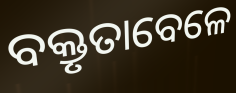
ବକ୍ତୃତାବେଳେ